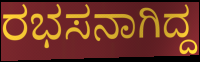
ರಭಸನಾಗಿದ್ದ